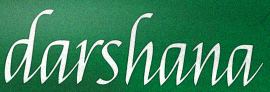
darshana